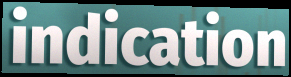
indication